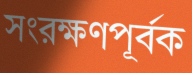
সংরক্ষণপূর্বক